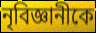
নৃবিজ্ঞানীকে